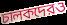
চালকদেরও